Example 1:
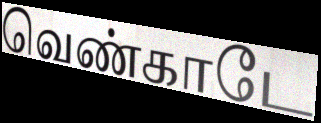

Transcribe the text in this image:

வெண்காடே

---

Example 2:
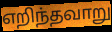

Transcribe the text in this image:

எறிந்தவாறு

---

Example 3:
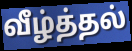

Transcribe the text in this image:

வீழ்த்தல்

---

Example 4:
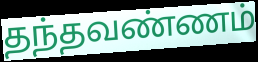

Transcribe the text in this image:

தந்தவண்ணம்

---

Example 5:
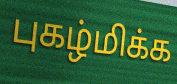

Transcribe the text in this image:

புகழ்மிக்க